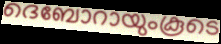
ദെബോറായുംകൂടെ